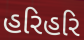
હરિહરિ